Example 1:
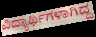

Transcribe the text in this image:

ವಿದ್ಯಾರ್ಥಿಗಳಾಗಿದ್ದ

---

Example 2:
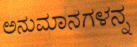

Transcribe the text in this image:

ಅನುಮಾನಗಳನ್ನ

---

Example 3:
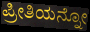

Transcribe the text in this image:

ಪ್ರೀತಿಯನ್ನೋ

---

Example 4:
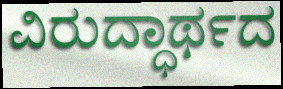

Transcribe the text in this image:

ವಿರುದ್ಧಾರ್ಥದ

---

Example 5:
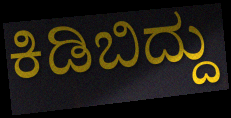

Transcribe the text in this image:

ಕಿಡಿಬಿದ್ದು